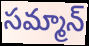
సమ్మాన్